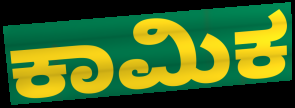
ಕಾಮಿಕ